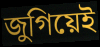
জুগিয়েই